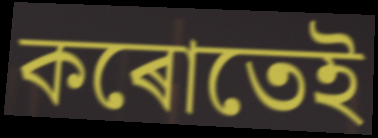
কৰোতেই